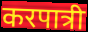
करपात्री